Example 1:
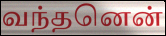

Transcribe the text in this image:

வந்தனென்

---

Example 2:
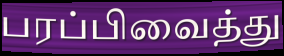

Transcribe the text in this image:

பரப்பிவைத்து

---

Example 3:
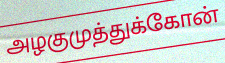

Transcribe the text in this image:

அழகுமுத்துக்கோன்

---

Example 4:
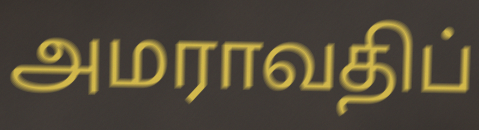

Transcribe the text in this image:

அமராவதிப்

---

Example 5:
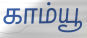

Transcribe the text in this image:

காம்யூ